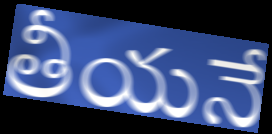
తీయనే